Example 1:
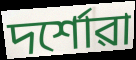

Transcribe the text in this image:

দৰ্শোৱা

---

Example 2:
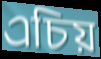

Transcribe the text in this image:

এচিয়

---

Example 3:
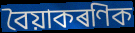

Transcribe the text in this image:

বৈয়াকৰণিক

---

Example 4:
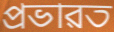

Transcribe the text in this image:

প্ৰভাৱত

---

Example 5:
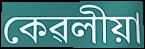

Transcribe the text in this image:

কেৱলীয়া